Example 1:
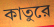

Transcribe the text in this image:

কাতুরে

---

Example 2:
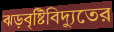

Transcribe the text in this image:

ঝড়বৃষ্টিবিদ্যুতের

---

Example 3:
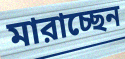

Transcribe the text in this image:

মারাচ্ছেন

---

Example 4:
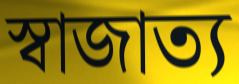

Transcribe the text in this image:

স্বাজাত্য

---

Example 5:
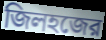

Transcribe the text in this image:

জিলহজের